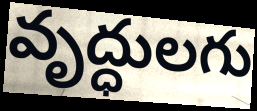
వృద్ధులగు